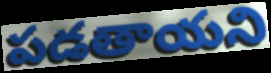
పడతాయని